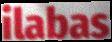
ilabas